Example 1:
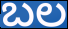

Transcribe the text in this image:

ಬಲ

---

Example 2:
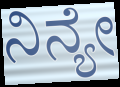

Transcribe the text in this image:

ನಿನ್ಯೇ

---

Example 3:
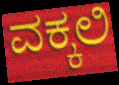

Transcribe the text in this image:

ವಕ್ಕಲಿ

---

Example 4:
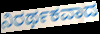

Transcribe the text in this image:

ನಿರರ್ಥಕವಾದ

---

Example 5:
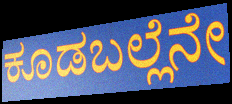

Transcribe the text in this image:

ಕೂಡಬಲ್ಲೆನೇ